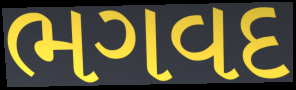
ભગવદ